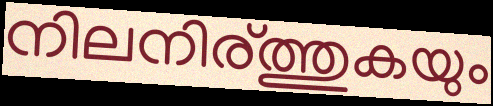
നിലനിര്ത്തുകയും